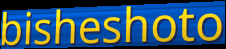
bisheshoto